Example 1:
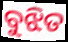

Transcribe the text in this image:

ବୁଝିତ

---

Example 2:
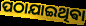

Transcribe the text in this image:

ପଠାଯାଇଥିଵା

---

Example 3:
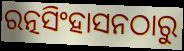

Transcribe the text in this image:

ରତ୍ନସିଂହାସନଠାରୁ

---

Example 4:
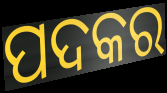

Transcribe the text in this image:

ପଦକର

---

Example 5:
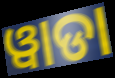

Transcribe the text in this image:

ୱାଡା